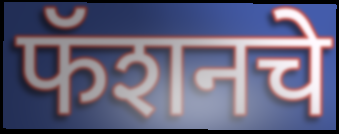
फॅशनचे